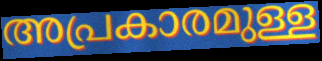
അപ്രകാരമുള്ള